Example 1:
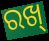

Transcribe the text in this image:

ରଖ୍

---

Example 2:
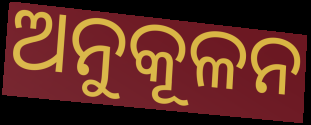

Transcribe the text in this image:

ଅନୁକୂଳନ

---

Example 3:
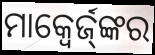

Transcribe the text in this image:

ମାକ୍ୱେର୍ଜ୍‌ଙ୍କର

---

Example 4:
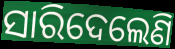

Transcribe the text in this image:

ସାରିଦେଲେଣି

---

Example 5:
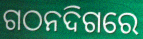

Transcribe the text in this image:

ଗଠନଦିଗରେ